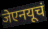
जेएनयूचं